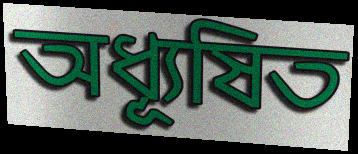
অধ্যূষিত